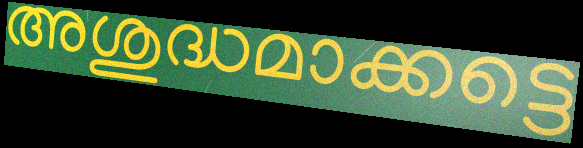
അശുദ്ധമാക്കട്ടെ